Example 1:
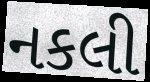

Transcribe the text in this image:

નકલી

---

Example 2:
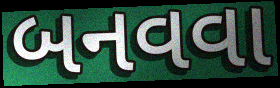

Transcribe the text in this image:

બનવવા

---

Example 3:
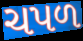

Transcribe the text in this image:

ચપળ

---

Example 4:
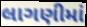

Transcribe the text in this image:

લાગણીમાં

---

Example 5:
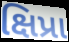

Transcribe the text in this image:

ક્ષિપ્રા